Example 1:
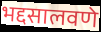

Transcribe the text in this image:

भद्दसालवणे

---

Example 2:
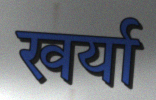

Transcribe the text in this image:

खर्या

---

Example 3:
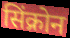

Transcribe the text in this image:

सिंक्रोन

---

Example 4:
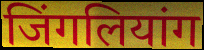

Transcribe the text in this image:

जिंगलियांग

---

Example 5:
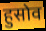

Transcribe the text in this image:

हुसोव